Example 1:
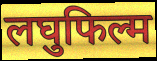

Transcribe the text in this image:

लघुफिल्म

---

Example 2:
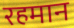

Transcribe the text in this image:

रहमान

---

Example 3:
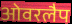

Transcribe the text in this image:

ओवरलैप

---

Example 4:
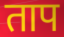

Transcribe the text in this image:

ताप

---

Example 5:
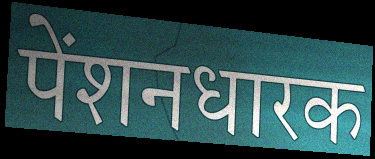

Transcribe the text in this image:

पेंशनधारक